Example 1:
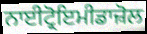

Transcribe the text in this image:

ਨਾਈਟ੍ਰੋਇਮੀਡਾਜ਼ੋਲ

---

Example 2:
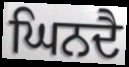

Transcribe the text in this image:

ਘਿਨਦੈ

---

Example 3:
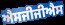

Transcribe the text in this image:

ਐਸਜੀਜੀਐਸ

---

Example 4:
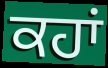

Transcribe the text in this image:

ਕਹਾਂ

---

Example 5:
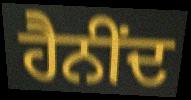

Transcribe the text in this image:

ਹੈਨੀਂਦ